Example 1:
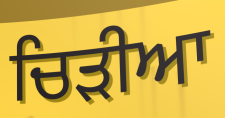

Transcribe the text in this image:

ਚਿੜੀਆ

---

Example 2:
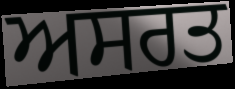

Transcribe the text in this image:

ਅਸਰਤ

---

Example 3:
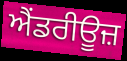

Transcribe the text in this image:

ਐਂਡਰੀਊਜ਼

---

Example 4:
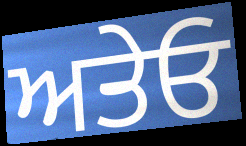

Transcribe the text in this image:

ਅਤੇਓ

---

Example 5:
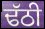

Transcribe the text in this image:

ਢੱਠੀ